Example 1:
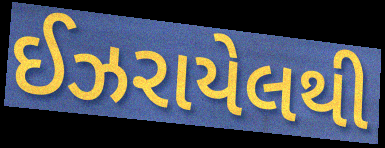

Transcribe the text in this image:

ઈઝરાયેલથી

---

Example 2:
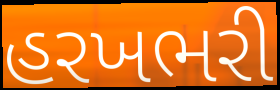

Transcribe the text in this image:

હરખભરી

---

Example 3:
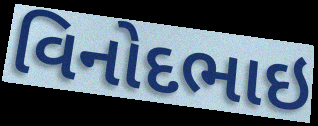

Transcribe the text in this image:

વિનોદભાઇ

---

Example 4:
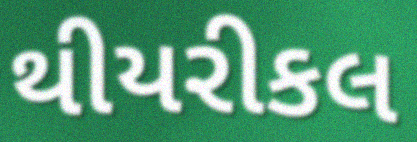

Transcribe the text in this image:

થીયરીકલ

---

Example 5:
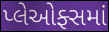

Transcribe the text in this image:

પ્લેઓફ્સમાં